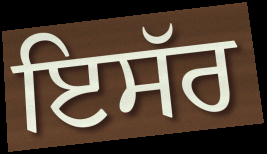
ਇਸੱਰ